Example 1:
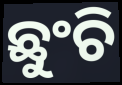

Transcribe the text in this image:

ଛୁଂଚି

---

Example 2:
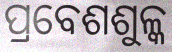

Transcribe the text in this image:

ପ୍ରବେଶଶୁଳ୍କ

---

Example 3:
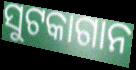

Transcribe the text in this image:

ସୁଟକାଗାନ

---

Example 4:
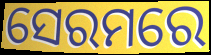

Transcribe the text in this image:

ସେରମରେ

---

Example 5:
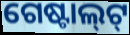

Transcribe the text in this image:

ଗେଷ୍ଟାଲ୍‌ଟ୍